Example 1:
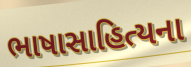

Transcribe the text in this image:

ભાષાસાહિત્યના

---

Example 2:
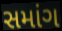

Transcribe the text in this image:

સમાંગ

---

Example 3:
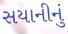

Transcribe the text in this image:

સયાનીનું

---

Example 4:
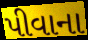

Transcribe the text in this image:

પીવાના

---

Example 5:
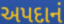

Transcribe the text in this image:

અપદાનં